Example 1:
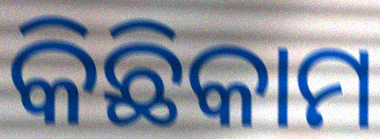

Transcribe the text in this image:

କିଛିକାମ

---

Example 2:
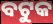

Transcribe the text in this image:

ବଟୁକ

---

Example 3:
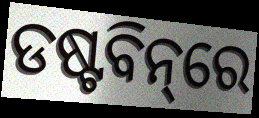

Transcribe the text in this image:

ଡଷ୍ଟବିନ୍‌ରେ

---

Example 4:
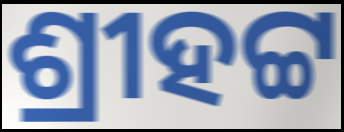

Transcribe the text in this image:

ଶ୍ରୀହଟ୍ଟ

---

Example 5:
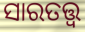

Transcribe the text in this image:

ସାରତତ୍ତ୍ୱ